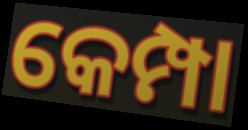
କେମ୍ପା